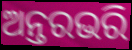
ଅନ୍ତରଭରି